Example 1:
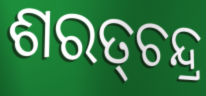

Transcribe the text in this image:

ଶରତ୍‌ଚନ୍ଦ୍ର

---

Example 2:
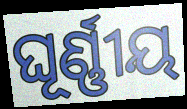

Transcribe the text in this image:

ଘୂର୍ଣ୍ଣୀୟ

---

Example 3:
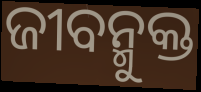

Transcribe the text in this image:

ଜୀବନ୍ମୁକ୍ତ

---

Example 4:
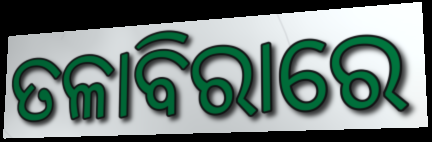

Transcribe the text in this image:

ତଳାବିରାରେ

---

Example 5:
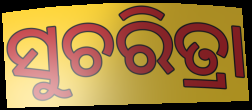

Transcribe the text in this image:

ସୁଚରିତ୍ରା